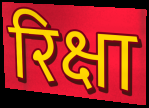
रिक्षा